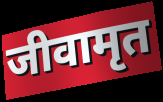
जीवामृत